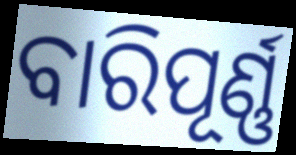
ବାରିପୂର୍ଣ୍ଣ